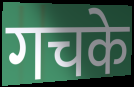
गचके